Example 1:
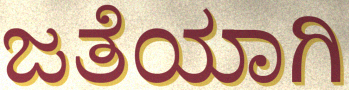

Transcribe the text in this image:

ಜತೆಯಾಗಿ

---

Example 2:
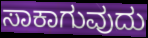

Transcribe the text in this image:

ಸಾಕಾಗುವುದು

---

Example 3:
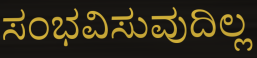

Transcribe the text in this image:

ಸಂಭವಿಸುವುದಿಲ್ಲ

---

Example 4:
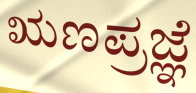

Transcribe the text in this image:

ಋಣಪ್ರಜ್ಞೆ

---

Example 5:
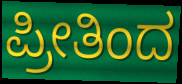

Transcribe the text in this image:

ಪ್ರೀತಿಂದ